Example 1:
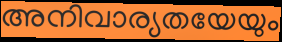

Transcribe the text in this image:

അനിവാര്യതയേയും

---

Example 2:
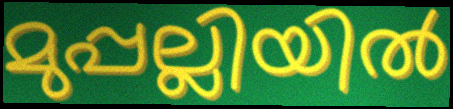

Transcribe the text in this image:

മുപ്പല്ലിയിൽ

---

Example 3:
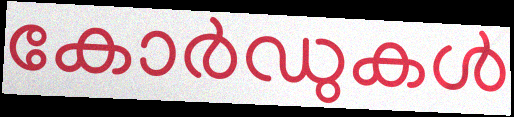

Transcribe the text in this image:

കോർഡുകൾ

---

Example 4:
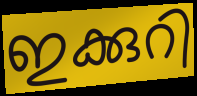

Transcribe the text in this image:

ഇക്കുറി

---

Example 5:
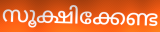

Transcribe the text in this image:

സൂക്ഷിക്കേണ്ട